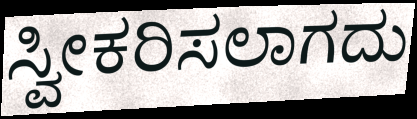
ಸ್ವೀಕರಿಸಲಾಗದು